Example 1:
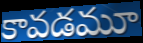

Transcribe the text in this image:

కావడమూ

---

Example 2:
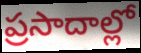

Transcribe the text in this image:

ప్రసాదాల్లో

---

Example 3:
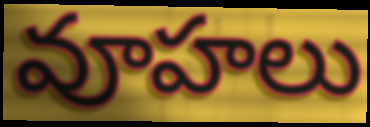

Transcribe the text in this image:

వూహలు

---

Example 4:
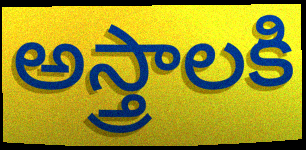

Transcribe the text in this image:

అస్త్రాలకి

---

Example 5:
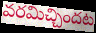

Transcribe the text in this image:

వరమిచ్చిందట